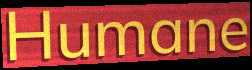
Humane